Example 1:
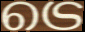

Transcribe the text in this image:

ട്രെ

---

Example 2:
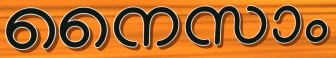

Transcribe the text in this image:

നൈസാം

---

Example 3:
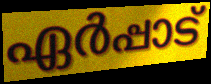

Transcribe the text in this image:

ഏർപ്പാട്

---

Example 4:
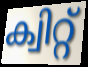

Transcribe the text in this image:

ക്വിറ്റ്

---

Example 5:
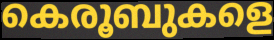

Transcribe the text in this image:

കെരൂബുകളെ